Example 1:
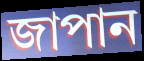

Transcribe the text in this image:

জাপান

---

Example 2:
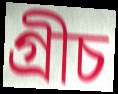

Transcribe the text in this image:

গ্ৰীচ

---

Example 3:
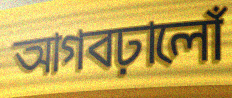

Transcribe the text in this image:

আগবঢ়ালোঁ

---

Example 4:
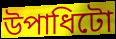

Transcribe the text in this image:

উপাধিটো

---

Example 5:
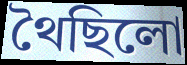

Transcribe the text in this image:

থৈছিলো